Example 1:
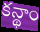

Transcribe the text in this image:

కన్థాం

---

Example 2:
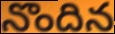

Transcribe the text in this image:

నొందిన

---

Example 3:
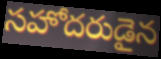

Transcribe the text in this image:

సహోదరుడైన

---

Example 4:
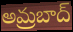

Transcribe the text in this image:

అమ్రబాద్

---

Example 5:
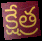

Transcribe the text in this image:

క్షేత్ర